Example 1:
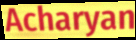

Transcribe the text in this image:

Acharyan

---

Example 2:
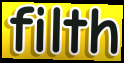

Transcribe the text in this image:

filth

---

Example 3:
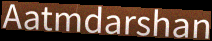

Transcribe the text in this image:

Aatmdarshan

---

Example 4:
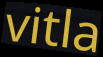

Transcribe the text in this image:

vitla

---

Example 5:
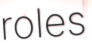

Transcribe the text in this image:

roles